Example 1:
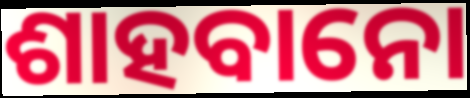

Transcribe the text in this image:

ଶାହବାନୋ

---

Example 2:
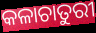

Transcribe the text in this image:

କଳାଚାତୁରୀ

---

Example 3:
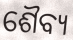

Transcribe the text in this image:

ଶୈବ୍ୟ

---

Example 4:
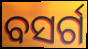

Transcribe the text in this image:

ବସର୍ଗ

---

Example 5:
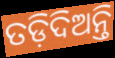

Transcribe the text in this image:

ତଡ଼ିଦିଅନ୍ତି